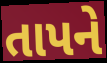
તાપને